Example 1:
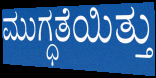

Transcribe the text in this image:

ಮುಗ್ಧತೆಯಿತ್ತು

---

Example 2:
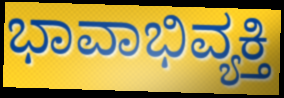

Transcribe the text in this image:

ಭಾವಾಭಿವ್ಯಕ್ತಿ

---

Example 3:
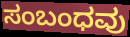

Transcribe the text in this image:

ಸಂಬಂಧವು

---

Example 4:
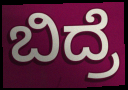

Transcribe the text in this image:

ಬಿದ್ರೆ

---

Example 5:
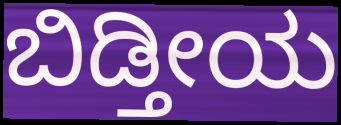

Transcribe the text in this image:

ಬಿಡ್ತೀಯ